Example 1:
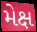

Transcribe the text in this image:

મેક્ષ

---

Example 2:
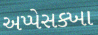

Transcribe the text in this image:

અપ્પેસક્ખા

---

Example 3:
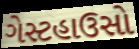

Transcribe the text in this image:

ગેસ્ટહાઉસો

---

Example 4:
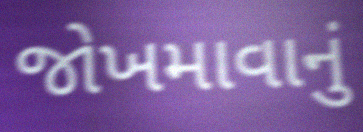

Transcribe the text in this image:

જોખમાવાનું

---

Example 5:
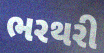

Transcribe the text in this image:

ભરથરી